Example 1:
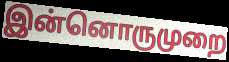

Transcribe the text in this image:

இன்னொருமுறை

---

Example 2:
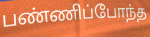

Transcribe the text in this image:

பண்ணிப்போந்த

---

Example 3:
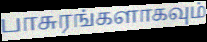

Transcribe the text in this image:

பாசுரங்களாகவும்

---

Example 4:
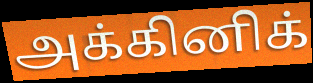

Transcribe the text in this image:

அக்கினிக்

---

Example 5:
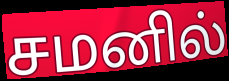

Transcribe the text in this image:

சமனில்